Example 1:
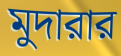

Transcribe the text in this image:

মুদারার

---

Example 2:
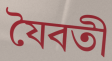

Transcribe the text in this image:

যৈবতী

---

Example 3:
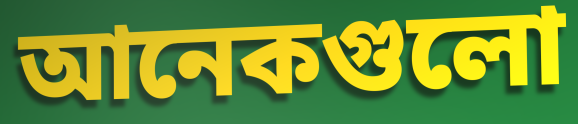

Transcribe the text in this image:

আনেকগুলো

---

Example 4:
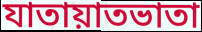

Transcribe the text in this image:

যাতায়াতভাতা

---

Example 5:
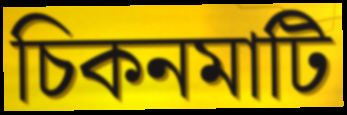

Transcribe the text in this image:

চিকনমাটি